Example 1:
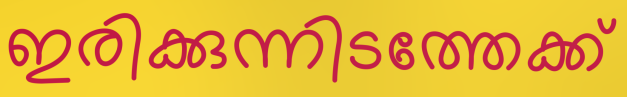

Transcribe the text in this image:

ഇരിക്കുന്നിടത്തേക്ക്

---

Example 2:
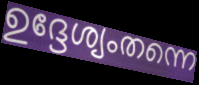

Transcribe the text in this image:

ഉദ്ദേശ്യംതന്നെ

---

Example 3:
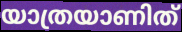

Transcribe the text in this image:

യാത്രയാണിത്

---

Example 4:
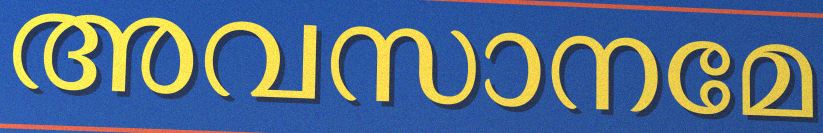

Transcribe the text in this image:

അവസാനമേ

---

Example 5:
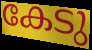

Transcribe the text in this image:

കേടു